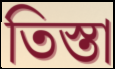
তিস্তা